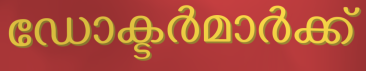
ഡോക്ടർമാർക്ക്